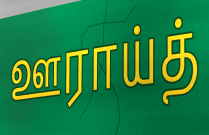
ஊராய்த்